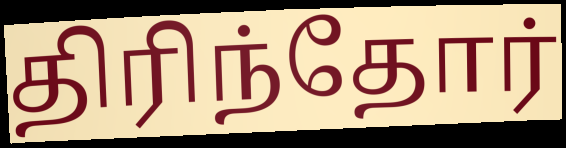
திரிந்தோர்